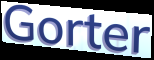
Gorter